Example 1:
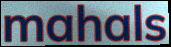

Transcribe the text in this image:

mahals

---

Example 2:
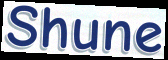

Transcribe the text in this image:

Shune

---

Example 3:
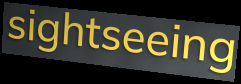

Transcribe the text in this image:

sightseeing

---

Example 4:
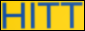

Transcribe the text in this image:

HITT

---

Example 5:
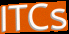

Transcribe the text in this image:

ITCs